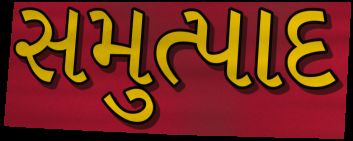
સમુત્પાદ